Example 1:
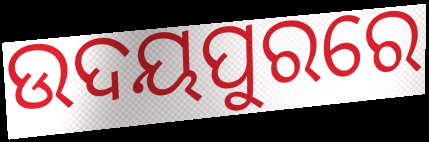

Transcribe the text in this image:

ଉଦୟପୁରରେ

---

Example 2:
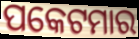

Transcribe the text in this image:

ପକେଟମାର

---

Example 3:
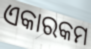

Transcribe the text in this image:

ଏକାରକମ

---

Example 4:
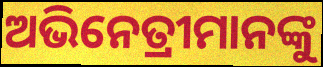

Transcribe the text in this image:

ଅଭିନେତ୍ରୀମାନଙ୍କୁ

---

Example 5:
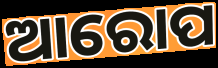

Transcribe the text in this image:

ଆରୋପ